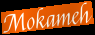
Mokameh